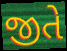
જીતે